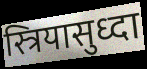
स्त्रियासुध्दा